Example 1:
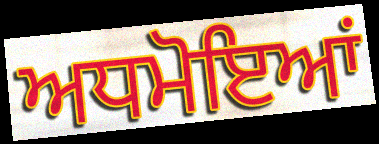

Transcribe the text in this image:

ਅਧਮੋਇਆਂ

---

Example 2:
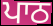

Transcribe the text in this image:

ਪਾਠ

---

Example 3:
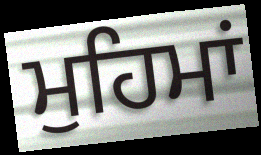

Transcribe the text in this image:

ਮੁਹਿਮਾਂ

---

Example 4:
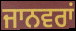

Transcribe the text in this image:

ਜਾਨਵਰਾਂ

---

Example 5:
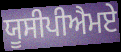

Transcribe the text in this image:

ਯੂਸੀਪੀਐਮਏ